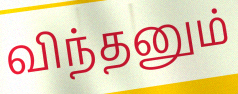
விந்தனும்